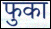
फुका